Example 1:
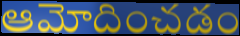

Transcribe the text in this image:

ఆమోదించడం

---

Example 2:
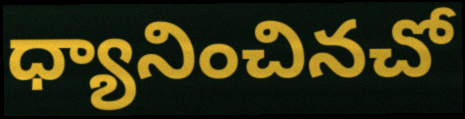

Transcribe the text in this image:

ధ్యానించినచో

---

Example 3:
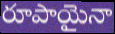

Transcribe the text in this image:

రూపాయైనా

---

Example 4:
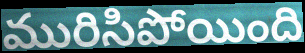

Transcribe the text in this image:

మురిసిపోయింది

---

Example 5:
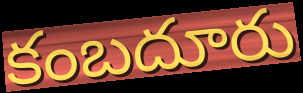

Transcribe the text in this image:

కంబదూరు